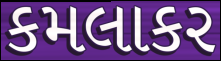
કમલાકર